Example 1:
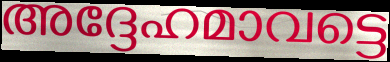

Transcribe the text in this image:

അദ്ദേഹമാവട്ടെ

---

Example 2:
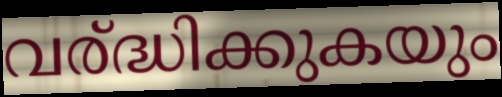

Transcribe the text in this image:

വര്ദ്ധിക്കുകയും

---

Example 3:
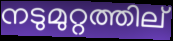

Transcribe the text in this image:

നടുമുറ്റത്തില്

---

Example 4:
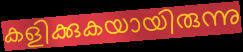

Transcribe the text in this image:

കളിക്കുകയായിരുന്നു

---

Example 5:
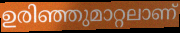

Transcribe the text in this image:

ഉരിഞ്ഞുമാറ്റലാണ്